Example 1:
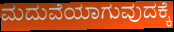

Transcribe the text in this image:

ಮದುವೆಯಾಗುವುದಕ್ಕೆ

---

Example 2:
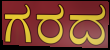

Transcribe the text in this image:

ಗರದ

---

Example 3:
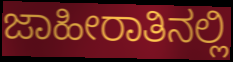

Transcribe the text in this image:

ಜಾಹೀರಾತಿನಲ್ಲಿ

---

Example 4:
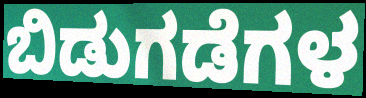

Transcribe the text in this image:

ಬಿಡುಗಡೆಗಳ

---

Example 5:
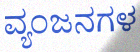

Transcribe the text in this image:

ವ್ಯಂಜನಗಳ